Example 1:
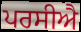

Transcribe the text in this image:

ਪਰਸੀਐ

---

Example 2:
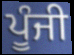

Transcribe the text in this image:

ਪੂੰਜੀ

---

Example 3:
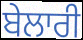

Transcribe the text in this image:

ਬੇਲਾਰੀ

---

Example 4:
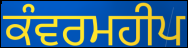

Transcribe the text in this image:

ਕੰਵਰਮਹੀਪ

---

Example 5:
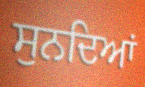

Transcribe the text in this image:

ਸੁਨਦਿਆਂ